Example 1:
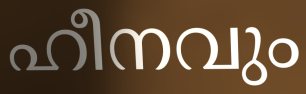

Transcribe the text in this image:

ഹീനവും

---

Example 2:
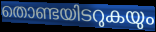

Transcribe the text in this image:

തൊണ്ടയിടറുകയും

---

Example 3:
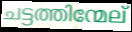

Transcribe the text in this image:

ചട്ടത്തിന്മേല്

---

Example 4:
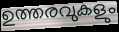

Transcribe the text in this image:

ഉത്തരവുകളും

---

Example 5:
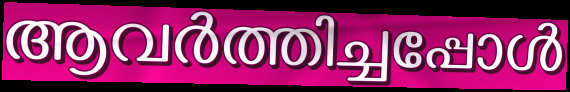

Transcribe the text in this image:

ആവർത്തിച്ചപ്പോൾ